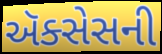
ઍક્સેસની